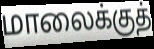
மாலைக்குத்